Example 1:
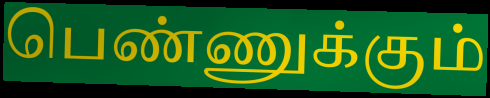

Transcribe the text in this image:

பெண்ணுக்கும்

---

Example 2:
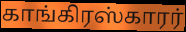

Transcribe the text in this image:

காங்கிரஸ்காரர்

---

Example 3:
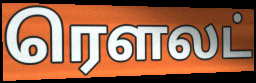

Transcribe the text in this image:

ரௌலட்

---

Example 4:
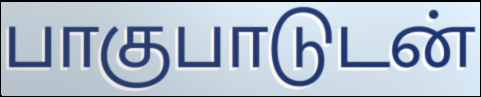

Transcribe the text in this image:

பாகுபாடுடன்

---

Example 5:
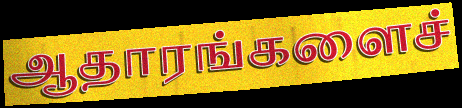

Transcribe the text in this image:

ஆதாரங்களைச்